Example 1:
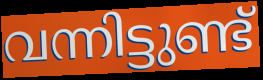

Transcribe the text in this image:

വന്നിട്ടുണ്ട്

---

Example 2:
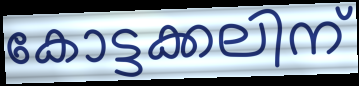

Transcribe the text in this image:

കോട്ടക്കലിന്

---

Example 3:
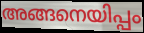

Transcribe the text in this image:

അങ്ങനെയിപ്പം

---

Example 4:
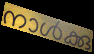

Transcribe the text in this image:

നാൾക്കു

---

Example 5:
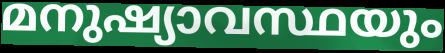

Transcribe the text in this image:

മനുഷ്യാവസ്ഥയും